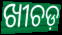
ଖୀଚଡ଼